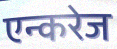
एन्करेज